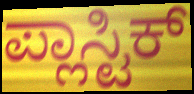
ಪ್ಲಾಸ್ಟಿಕ್